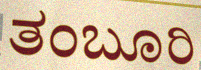
ತಂಬೂರಿ